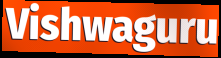
Vishwaguru